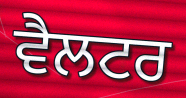
ਵੈਲਟਰ